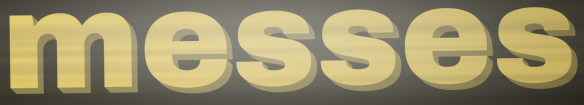
messes